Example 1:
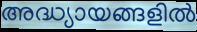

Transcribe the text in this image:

അദ്ധ്യായങ്ങളിൽ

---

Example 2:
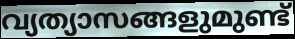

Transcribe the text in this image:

വ്യത്യാസങ്ങളുമുണ്ട്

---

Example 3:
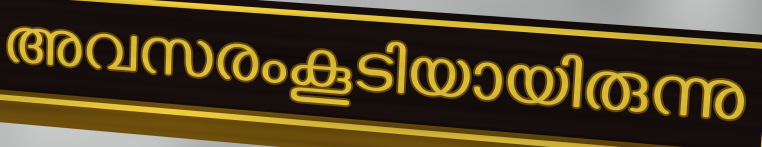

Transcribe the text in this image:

അവസരംകൂടിയായിരുന്നു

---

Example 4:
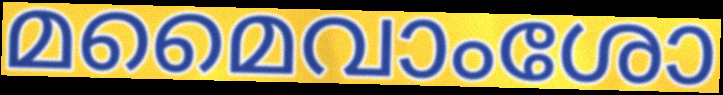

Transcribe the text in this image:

മമൈവാംശോ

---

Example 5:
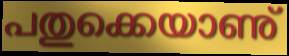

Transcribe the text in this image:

പതുക്കെയാണു്